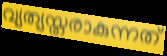
വ്യത്യസ്തരാകുന്നത്